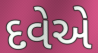
દવેએ